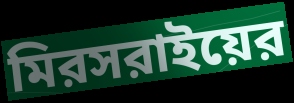
মিরসরাইয়ের